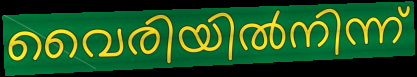
വൈരിയിൽനിന്ന്